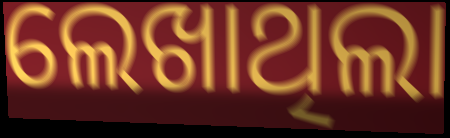
ଲେଖାଥିଲା